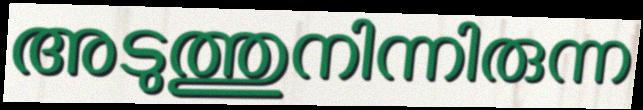
അടുത്തുനിന്നിരുന്ന